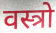
वस्त्रो